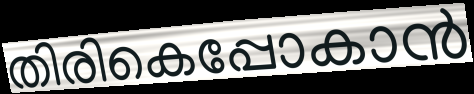
തിരികെപ്പോകാൻ